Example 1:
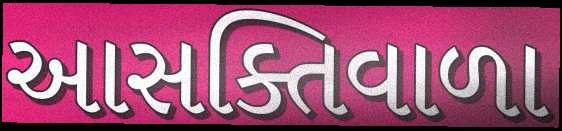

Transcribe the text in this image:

આસક્તિવાળા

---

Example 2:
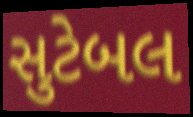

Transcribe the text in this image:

સુટેબલ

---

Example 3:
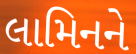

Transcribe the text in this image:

લામિનને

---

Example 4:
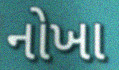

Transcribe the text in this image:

નોખા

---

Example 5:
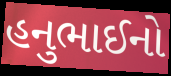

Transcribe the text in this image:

હનુભાઈનો